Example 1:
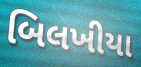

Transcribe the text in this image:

બિલખીયા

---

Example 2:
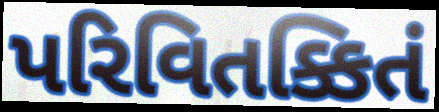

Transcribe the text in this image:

પરિવિતક્કિતં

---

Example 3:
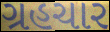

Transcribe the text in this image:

ગ્રહચાર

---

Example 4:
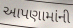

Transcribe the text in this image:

આપણામાંની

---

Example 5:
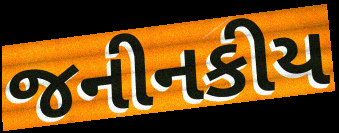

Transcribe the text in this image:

જનીનકીય